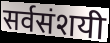
सर्वसंशयी